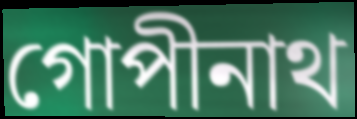
গোপীনাথ